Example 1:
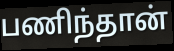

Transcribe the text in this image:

பணிந்தான்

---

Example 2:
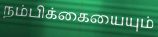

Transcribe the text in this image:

நம்பிக்கையையும்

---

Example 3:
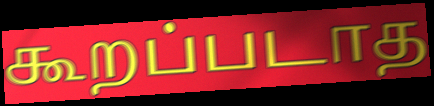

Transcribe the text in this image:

கூறப்படாத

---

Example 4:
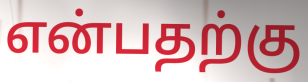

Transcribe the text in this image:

என்பதற்கு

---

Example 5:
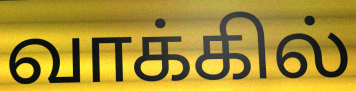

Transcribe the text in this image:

வாக்கில்